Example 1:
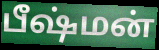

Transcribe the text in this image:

பீஷ்மன்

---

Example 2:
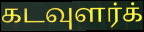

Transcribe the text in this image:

கடவுளர்க்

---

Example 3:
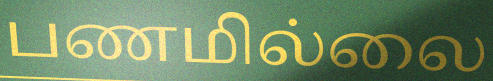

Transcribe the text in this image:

பணமில்லை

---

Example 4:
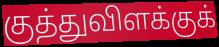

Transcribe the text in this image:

குத்துவிளக்குக்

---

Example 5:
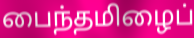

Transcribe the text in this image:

பைந்தமிழைப்